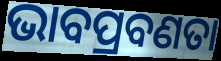
ଭାବପ୍ରବଣତା